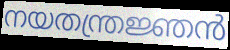
നയതന്ത്രജ്ഞൻ